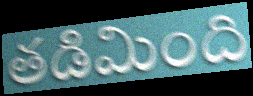
తడిమింది